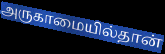
அருகாமையில்தான்